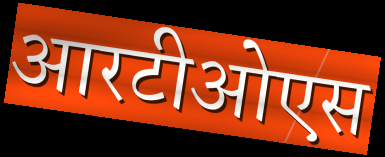
आरटीओएस